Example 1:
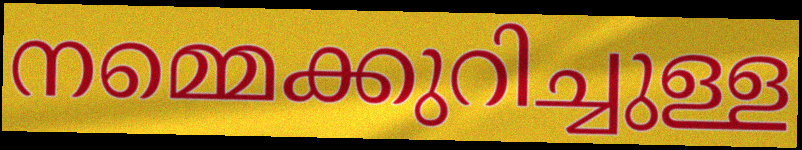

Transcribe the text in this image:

നമ്മെക്കുറിച്ചുള്ള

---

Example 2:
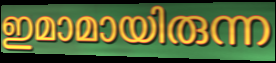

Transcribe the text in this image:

ഇമാമായിരുന്ന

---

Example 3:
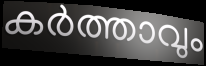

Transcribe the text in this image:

കർത്താവും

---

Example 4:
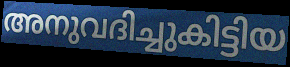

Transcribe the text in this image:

അനുവദിച്ചുകിട്ടിയ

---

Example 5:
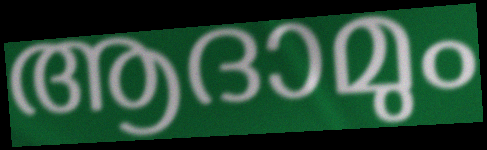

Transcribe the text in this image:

ആദാമും